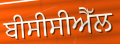
ਬੀਸੀਸੀਐੱਲ